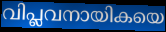
വിപ്ലവനായികയെ